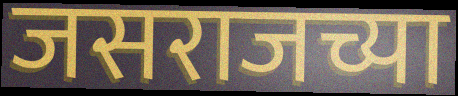
जसराजच्या